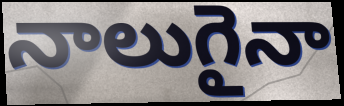
నాలుగైనా